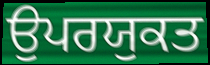
ਉਪਰਯੁਕਤ